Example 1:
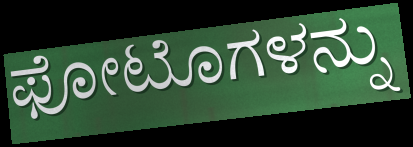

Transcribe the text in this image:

ಫೋಟೊಗಳನ್ನು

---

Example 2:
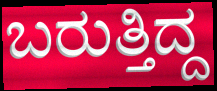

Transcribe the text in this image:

ಬರುತ್ತಿದ್ದ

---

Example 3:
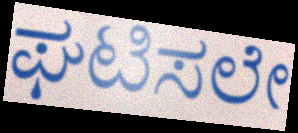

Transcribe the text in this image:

ಘಟಿಸಲೇ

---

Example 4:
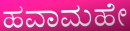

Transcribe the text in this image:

ಹವಾಮಹೇ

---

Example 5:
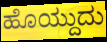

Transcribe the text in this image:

ಹೊಯ್ದುದು